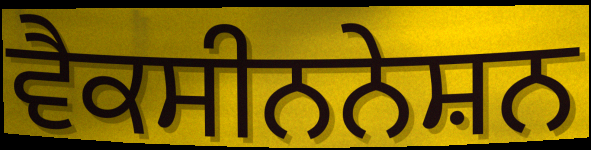
ਵੈਕਸੀਨਨੇਸ਼ਨ